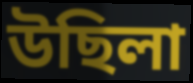
উছিলা